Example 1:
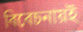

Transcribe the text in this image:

বিবেচনায়ই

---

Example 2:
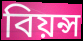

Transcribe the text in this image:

বিয়ন্স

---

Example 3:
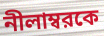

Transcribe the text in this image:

নীলাম্বরকে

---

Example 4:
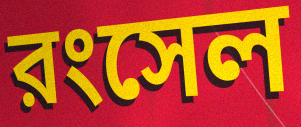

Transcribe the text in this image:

রংসেল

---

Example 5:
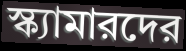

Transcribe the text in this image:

স্ক্যামারদের